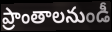
ప్రాంతాలనుండీ